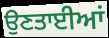
ਉਣਤਾਈਆਂ